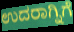
ಉದರಾಗ್ನಿಗೆ